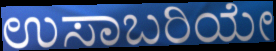
ಉಸಾಬರಿಯೇ